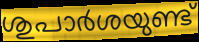
ശുപാർശയുണ്ട്